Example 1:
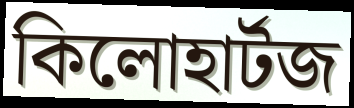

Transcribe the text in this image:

কিলোহার্টজ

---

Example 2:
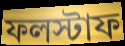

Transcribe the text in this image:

ফলস্টাফ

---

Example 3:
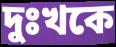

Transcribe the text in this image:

দুঃখকে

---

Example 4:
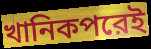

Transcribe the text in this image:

খানিকপরেই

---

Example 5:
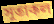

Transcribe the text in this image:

সুতাকল